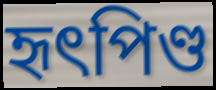
হৃৎপিণ্ড